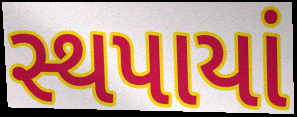
સ્થપાયાં